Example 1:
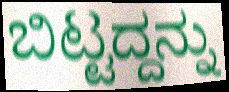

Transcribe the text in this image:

ಬಿಟ್ಟದ್ದನ್ನು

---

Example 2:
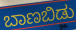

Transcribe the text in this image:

ಬಾಣಬಿಡು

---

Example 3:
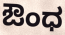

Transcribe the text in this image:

ಔಂಧ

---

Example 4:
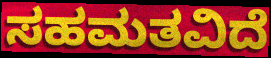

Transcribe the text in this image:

ಸಹಮತವಿದೆ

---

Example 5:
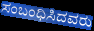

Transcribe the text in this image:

ಸಂಬಂಧಿಸಿದವರು